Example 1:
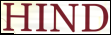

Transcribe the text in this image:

HIND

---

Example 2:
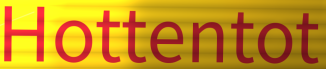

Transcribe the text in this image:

Hottentot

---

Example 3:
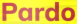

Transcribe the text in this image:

Pardo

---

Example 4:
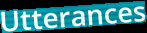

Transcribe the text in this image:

Utterances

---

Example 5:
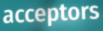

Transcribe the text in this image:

acceptors